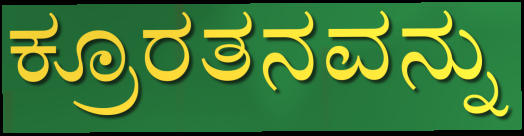
ಕ್ರೂರತನವನ್ನು